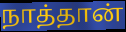
நாத்தான்